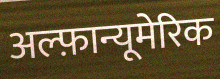
अल्फ़ान्यूमेरिक